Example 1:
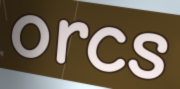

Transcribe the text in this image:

orcs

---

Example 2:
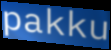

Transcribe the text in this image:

pakku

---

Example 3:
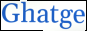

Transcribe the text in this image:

Ghatge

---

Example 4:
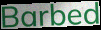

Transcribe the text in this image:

Barbed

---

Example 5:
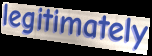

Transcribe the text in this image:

legitimately